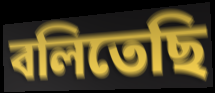
বলিতেছি